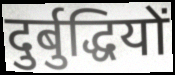
दुर्बुद्धियों